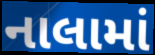
નાલામાં